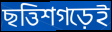
ছত্তিশগড়েই